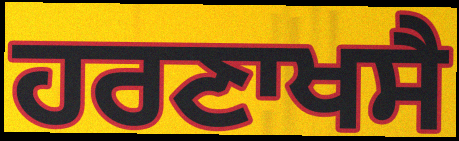
ਹਰਣਾਖਸੈ